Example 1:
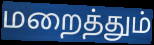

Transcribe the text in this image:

மறைத்தும்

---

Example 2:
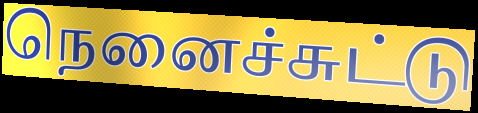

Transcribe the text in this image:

நெனைச்சுட்டு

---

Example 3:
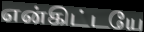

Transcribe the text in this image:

என்கிட்டயே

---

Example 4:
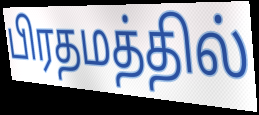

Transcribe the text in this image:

பிரதமத்தில்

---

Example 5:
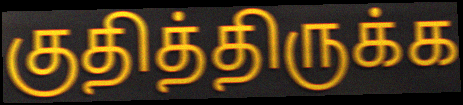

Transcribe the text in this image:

குதித்திருக்க